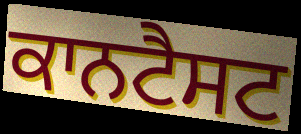
ਕਾਨਟੈਸਟ